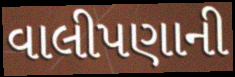
વાલીપણાની